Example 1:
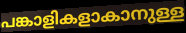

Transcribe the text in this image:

പങ്കാളികളാകാനുള്ള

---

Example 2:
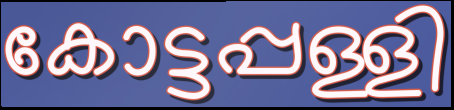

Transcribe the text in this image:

കോട്ടപ്പള്ളി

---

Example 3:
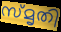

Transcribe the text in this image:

സ്മൃതി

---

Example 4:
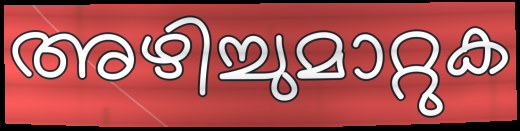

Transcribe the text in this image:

അഴിച്ചുമാറ്റുക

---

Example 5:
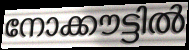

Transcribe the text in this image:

നോക്കൗട്ടിൽ